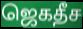
ஜெகதீச